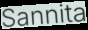
Sannita